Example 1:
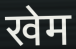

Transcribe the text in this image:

खेम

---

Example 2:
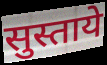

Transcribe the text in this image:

सुस्ताये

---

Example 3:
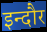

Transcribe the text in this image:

इन्दौर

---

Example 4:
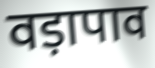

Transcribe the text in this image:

वड़ापाव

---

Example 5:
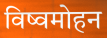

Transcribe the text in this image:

विष्वमोहन